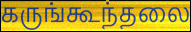
கருங்கூந்தலை